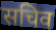
सचिव